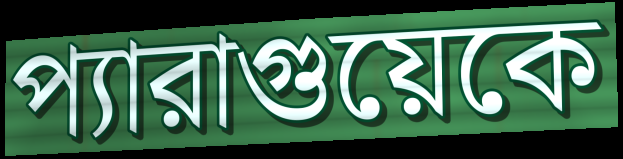
প্যারাগুয়েকে